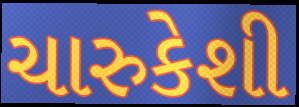
ચારુકેશી